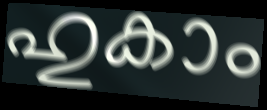
ഹുകാം